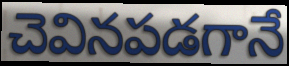
చెవినపడగానే